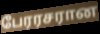
பேரரசரான